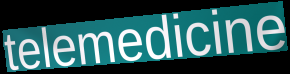
telemedicine